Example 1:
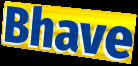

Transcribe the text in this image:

Bhave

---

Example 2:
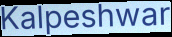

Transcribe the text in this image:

Kalpeshwar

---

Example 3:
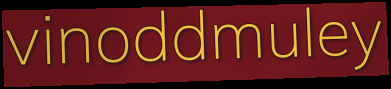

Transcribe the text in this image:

vinoddmuley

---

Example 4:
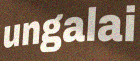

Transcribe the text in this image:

ungalai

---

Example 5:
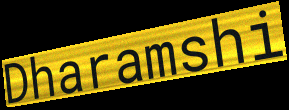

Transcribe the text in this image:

Dharamshi